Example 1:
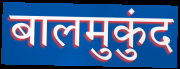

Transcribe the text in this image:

बालमुकुंद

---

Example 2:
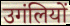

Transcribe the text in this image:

उगंलियों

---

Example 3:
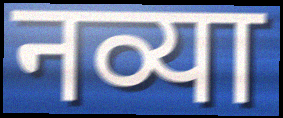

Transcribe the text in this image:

नव्या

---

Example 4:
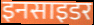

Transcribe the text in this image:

इनसाइडर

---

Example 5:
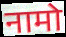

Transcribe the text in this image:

नामो